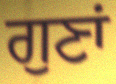
ਗੁਣਾਂ